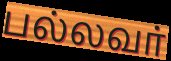
பல்லவர்